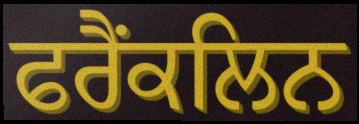
ਫਰੈਂਕਲਿਨ